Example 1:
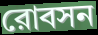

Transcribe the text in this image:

রোবসন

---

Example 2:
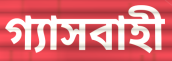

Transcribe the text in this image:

গ্যাসবাহী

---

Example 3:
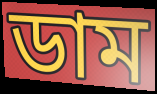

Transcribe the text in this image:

ডাম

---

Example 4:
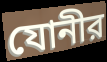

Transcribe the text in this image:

যোনীর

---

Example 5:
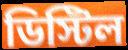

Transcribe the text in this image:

ডিস্টিল